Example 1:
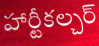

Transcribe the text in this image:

హార్టీకల్చర్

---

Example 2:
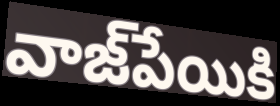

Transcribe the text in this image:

వాజ్‌పేయికి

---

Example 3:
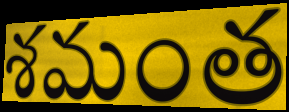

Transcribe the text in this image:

శమంత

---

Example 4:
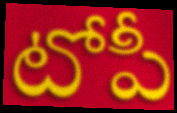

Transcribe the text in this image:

టోపీ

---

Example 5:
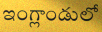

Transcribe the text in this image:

ఇంగ్లాండులో